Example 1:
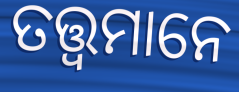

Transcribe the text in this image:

ତତ୍ତ୍ବମାନେ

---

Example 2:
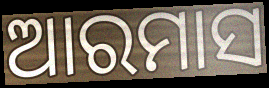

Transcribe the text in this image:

ଆରମାସ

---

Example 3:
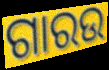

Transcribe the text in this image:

ଗାରଉ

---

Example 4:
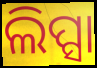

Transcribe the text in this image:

ଲିପ୍ସା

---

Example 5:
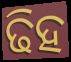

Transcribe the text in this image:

ଢିହ